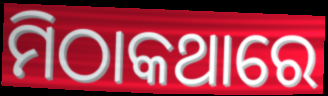
ମିଠାକଥାରେ